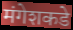
मंगेशकडे